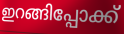
ഇറങ്ങിപ്പോക്ക്